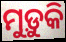
ମୁଡ଼ୁକି